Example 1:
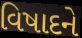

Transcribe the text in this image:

વિષાદને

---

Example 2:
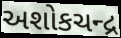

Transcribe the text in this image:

અશોકચન્દ્ર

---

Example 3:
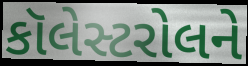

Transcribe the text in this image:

કૉલેસ્ટરોલને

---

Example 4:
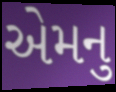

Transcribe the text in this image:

એમનુ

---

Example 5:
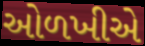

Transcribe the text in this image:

ઓળખીએ